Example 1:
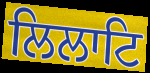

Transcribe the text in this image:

ਲਿਲਾਟਿ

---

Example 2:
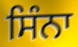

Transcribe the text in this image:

ਸਿੰਨਾ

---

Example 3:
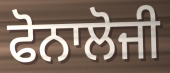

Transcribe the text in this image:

ਫੋਨਾਲੋਜੀ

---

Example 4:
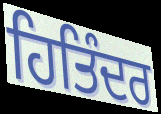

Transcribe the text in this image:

ਹਿਤਿੰਦਰ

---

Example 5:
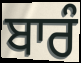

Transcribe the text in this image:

ਬਾਰੰ